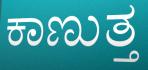
ಕಾಣುತ್ತ